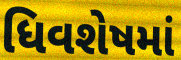
ધિવશેષમાં